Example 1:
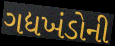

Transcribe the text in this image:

ગદ્યખંડોની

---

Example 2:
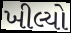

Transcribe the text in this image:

ખીલ્યો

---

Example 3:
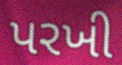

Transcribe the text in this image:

પરખી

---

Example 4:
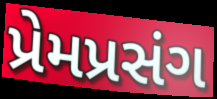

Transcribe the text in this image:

પ્રેમપ્રસંગ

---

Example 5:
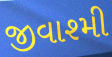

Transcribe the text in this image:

જીવાશ્મી